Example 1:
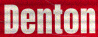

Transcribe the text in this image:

Denton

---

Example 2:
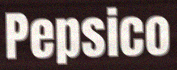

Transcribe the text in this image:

Pepsico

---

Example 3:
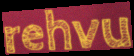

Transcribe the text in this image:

rehvu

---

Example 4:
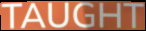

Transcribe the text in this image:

TAUGHT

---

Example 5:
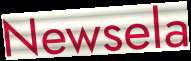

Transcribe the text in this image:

Newsela